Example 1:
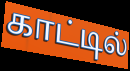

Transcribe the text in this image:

காட்டில்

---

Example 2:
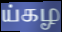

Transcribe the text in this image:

ய்கழ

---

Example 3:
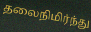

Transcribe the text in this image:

தலைநிமிர்ந்து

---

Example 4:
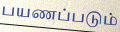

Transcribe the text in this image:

பயணப்படும்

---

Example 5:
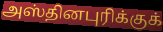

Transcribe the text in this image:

அஸ்தினபுரிக்குக்